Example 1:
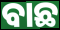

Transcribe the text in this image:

ବାଛ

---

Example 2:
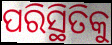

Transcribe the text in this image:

ପରିସ୍ଥିତିକୁ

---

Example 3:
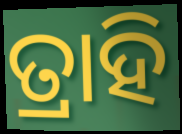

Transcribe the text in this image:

ତ୍ରାହି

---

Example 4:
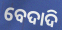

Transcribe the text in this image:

ବେଦାଦି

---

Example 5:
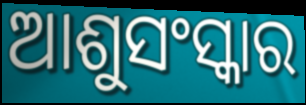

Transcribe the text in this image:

ଆଶୁସଂସ୍କାର